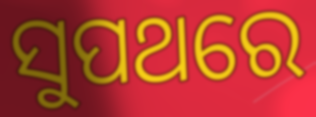
ସୁପଥରେ